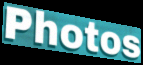
Photos